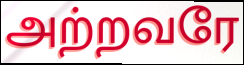
அற்றவரே